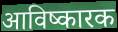
आविष्कारक